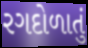
રગદોળાતું